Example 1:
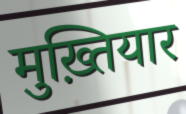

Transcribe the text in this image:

मुख़्तियार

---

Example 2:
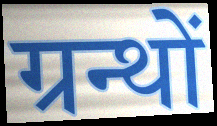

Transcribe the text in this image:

ग्रन्थों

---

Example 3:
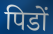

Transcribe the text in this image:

पिडों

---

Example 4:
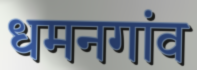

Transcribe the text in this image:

धमनगांव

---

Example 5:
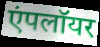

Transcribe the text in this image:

एंपलॉयर